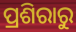
ପ୍ରଶିରାରୁ